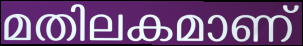
മതിലകമാണ്